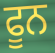
ਫੂਨ